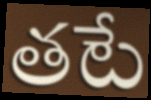
తటే